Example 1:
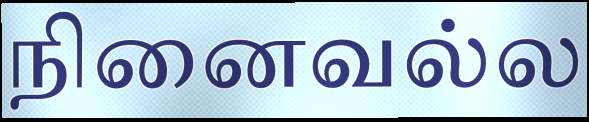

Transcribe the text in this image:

நினைவல்ல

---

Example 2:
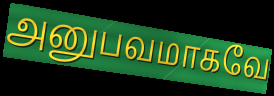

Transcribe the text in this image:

அனுபவமாகவே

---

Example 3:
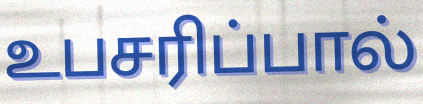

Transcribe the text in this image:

உபசரிப்பால்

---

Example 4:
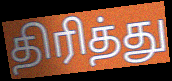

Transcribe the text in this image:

திரித்து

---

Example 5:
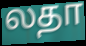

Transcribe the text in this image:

லதா